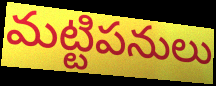
మట్టిపనులు